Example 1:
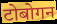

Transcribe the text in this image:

टोबोगन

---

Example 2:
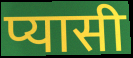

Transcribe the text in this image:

प्यासी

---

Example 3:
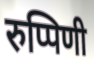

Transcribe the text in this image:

रुप्पिणी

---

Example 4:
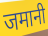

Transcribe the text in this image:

जमानी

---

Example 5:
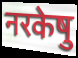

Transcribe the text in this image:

नरकेषु